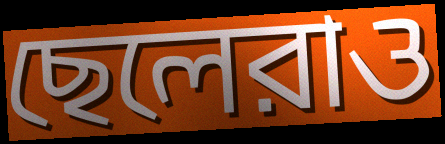
ছেলেরাও